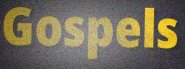
Gospels